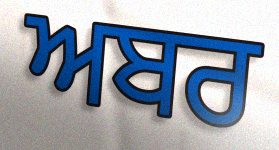
ਅਬਰ